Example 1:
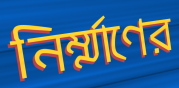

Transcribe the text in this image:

নির্ম্মাণের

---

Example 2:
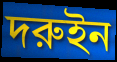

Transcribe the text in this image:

দরুইন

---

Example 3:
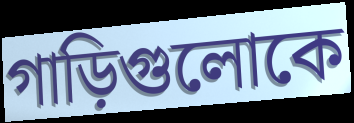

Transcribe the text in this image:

গাড়িগুলোকে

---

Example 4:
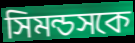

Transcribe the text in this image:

সিমন্ডসকে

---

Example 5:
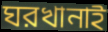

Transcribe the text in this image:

ঘরখানাই